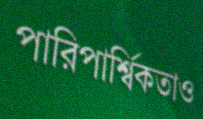
পারিপার্শ্বিকতাও